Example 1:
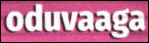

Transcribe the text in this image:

oduvaaga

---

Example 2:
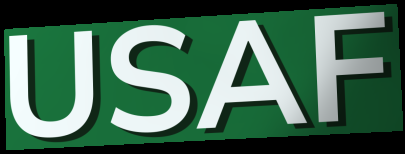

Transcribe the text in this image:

USAF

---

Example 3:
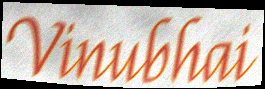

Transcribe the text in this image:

Vinubhai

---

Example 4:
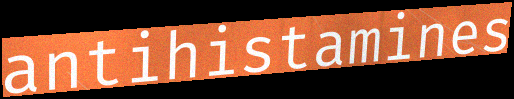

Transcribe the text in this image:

antihistamines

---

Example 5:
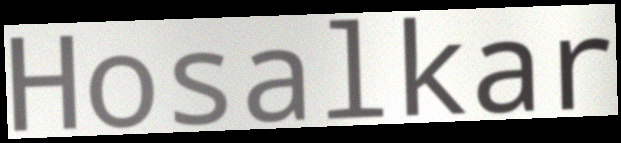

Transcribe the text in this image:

Hosalkar